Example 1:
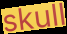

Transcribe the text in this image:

skull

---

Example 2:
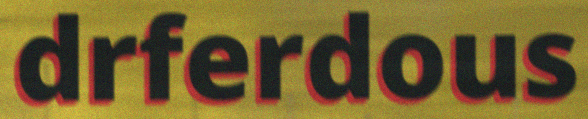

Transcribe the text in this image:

drferdous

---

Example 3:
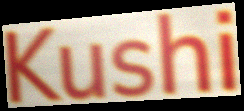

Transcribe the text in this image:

Kushi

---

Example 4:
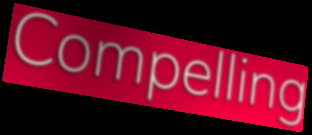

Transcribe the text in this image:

Compelling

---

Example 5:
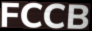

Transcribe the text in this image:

FCCB